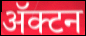
ॲक्टन